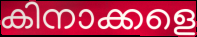
കിനാക്കളെ